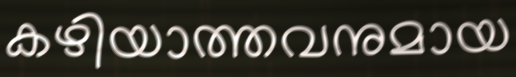
കഴിയാത്തവനുമായ